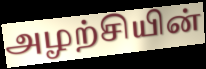
அழற்சியின்